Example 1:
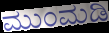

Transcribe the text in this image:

ಮುಂಮಡಿ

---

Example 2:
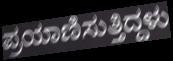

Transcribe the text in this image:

ಪ್ರಯಾಣಿಸುತ್ತಿದ್ದಳು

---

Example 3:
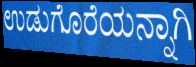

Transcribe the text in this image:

ಉಡುಗೊರೆಯನ್ನಾಗಿ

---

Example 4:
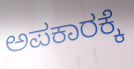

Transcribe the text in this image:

ಅಪಕಾರಕ್ಕೆ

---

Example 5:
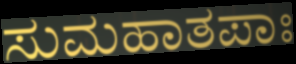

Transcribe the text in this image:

ಸುಮಹಾತಪಾಃ